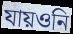
যায়ওনি